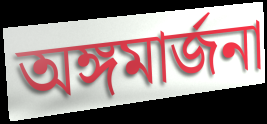
অঙ্গমার্জনা